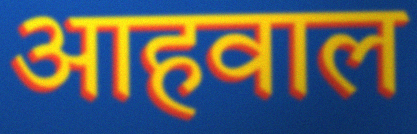
आहवाल